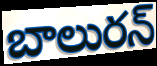
బాలురన్